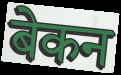
बेकन